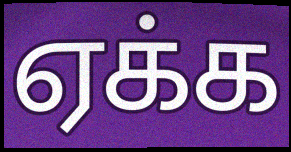
ஏக்க